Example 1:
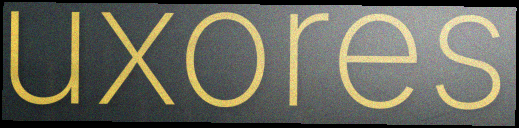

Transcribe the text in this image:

uxores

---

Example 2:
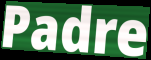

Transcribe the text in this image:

Padre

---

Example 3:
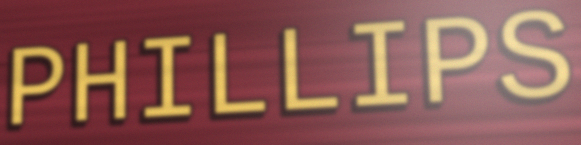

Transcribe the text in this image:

PHILLIPS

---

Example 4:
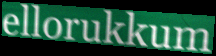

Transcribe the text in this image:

ellorukkum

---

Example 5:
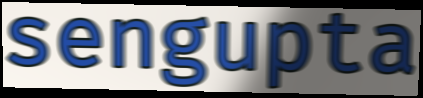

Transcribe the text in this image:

sengupta